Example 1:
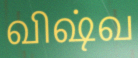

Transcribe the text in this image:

விஷ்வ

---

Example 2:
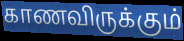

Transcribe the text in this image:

காணவிருக்கும்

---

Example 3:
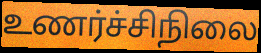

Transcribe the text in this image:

உணர்ச்சிநிலை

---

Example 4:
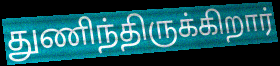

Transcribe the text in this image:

துணிந்திருக்கிறார்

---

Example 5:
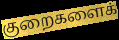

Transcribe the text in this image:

குறைகளைக்